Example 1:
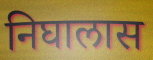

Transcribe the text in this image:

निघालास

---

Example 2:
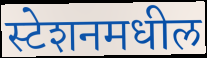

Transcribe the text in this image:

स्टेशनमधील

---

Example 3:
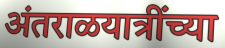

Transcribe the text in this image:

अंतराळयात्रींच्या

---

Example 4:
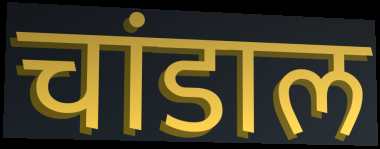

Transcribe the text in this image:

चांडाल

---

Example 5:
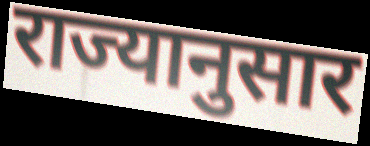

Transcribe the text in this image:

राज्यानुसार